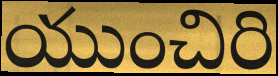
యుంచిరి